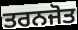
ਤਰਨਜੋਤ